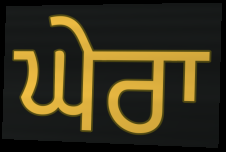
ਘੇਰਾ